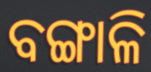
ବଙ୍ଗାଳି